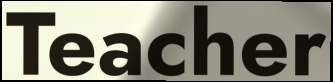
Teacher